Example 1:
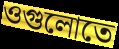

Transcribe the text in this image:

ওগুলোতে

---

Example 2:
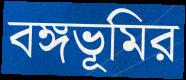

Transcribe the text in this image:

বঙ্গভূমির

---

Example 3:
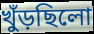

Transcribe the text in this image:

খুঁড়ছিলো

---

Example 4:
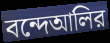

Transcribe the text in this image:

বন্দেআলির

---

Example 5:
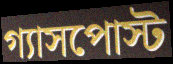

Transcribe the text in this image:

গ্যাসপোস্ট